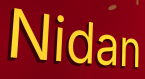
Nidan